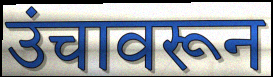
उंचावरून